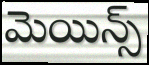
మెయిన్స్